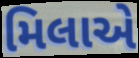
મિલાએ